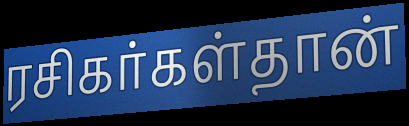
ரசிகர்கள்தான்